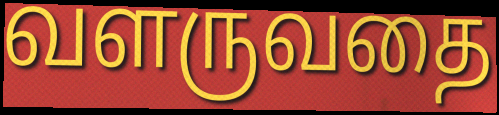
வளருவதை